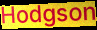
Hodgson